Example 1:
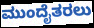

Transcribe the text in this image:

ಮುಂದೈತರಲು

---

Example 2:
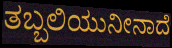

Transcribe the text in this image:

ತಬ್ಬಲಿಯುನೀನಾದೆ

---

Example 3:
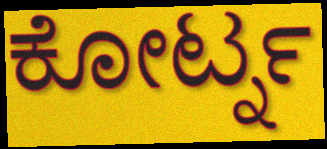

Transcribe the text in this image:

ಕೋರ್ಟ್ನ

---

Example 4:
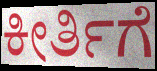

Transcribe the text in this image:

ಕೀರ್ತಿಗೆ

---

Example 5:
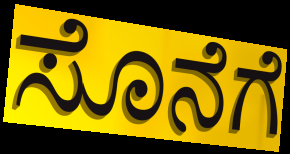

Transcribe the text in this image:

ಸೊನೆಗೆ